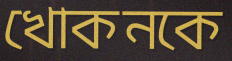
খোকনকে